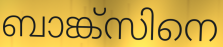
ബാങ്ക്സിനെ